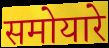
समोयारे